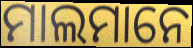
ମାଲମାନେ